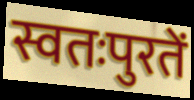
स्वतःपुरतें